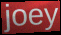
joey